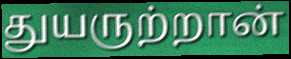
துயருற்றான்